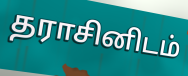
தராசினிடம்